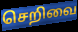
செறிவை